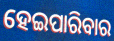
ହେଇପାରିବାର